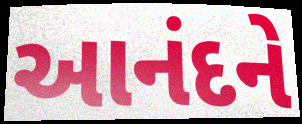
આનંદને